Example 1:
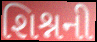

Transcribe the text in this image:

શિશ્નની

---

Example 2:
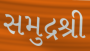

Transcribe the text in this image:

સમુદ્રશ્રી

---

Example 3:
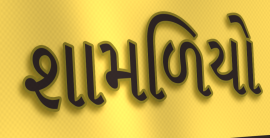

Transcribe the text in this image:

શામળિયો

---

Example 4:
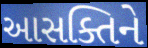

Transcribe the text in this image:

આસક્તિને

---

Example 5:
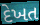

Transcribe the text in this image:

દેખત